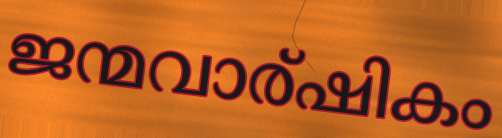
ജന്മവാര്ഷികം